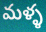
మళ్ళ